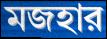
মজহার